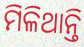
ମିଳିଥାନ୍ତି